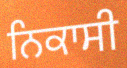
ਨਿਕਾਸੀ